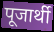
पूजार्थी